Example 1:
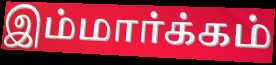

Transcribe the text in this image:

இம்மார்க்கம்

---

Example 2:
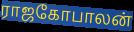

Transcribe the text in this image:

ராஜகோபாலன்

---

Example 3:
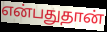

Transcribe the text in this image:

என்பதுதான்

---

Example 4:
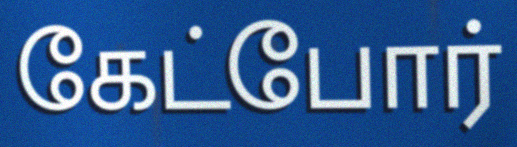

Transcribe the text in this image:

கேட்போர்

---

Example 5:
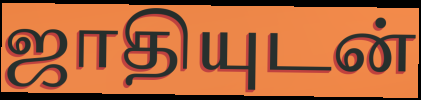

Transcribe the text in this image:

ஜாதியுடன்